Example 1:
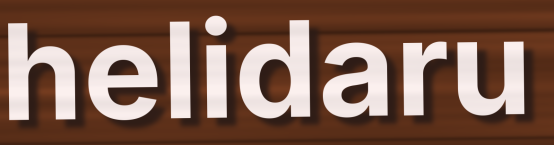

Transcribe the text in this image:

helidaru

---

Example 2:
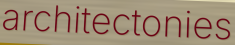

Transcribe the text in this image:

architectonies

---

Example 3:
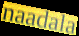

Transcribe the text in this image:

naadala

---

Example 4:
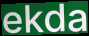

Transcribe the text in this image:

ekda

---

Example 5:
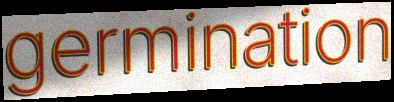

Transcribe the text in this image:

germination